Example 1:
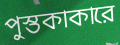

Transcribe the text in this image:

পুস্তকাকারে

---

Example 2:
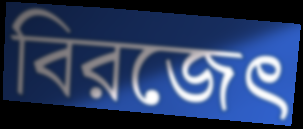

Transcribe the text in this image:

বিরজেৎ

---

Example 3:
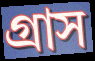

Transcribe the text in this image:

গ্রাস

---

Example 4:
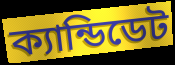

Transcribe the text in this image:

ক্যান্ডিডেট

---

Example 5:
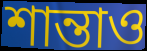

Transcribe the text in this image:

শান্তাও